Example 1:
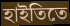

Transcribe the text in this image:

হাইতিতে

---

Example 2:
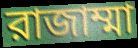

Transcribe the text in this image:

রাজাম্মা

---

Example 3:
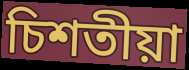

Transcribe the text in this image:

চিশতীয়া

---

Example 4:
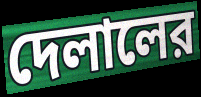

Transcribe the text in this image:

দেলালের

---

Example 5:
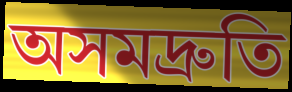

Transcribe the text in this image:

অসমদ্রুতি